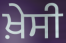
ਖ਼ੇਸੀ